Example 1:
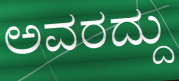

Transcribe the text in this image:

ಅವರದ್ದು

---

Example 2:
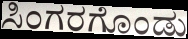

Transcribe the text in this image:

ಸಿಂಗರಗೊಂಡು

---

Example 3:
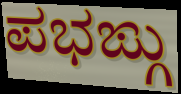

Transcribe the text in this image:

ಪಭಙ್ಗು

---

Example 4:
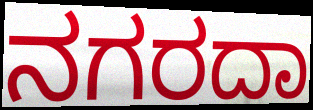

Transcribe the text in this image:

ನಗರದಾ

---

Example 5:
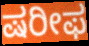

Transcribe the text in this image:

ಷರೀಫ